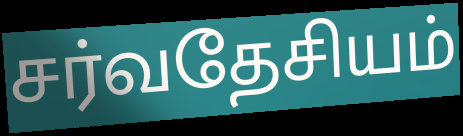
சர்வதேசியம்